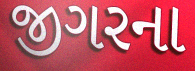
જીગરના